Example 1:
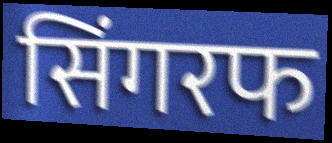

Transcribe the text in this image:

सिंगरफ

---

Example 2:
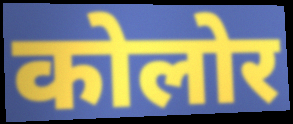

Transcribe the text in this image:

कोलोर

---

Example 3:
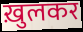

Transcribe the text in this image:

ख़ुलकर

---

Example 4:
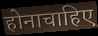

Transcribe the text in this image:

होनाचाहिए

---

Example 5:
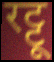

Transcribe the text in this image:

रट्टू